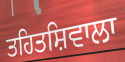
ਤਹਿਤਸ਼ਿਵਾਲਾ